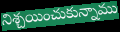
నిశ్చయించుకున్నాము